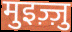
मुइज़्ज़ु